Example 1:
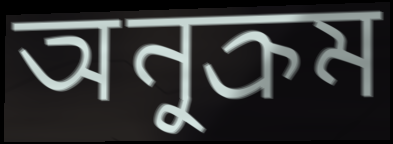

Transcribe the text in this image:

অনুক্রম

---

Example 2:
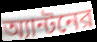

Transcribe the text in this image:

অ্যান্টনের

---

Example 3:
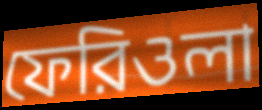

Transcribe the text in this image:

ফেরিওলা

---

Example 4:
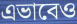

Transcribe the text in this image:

এভাবেও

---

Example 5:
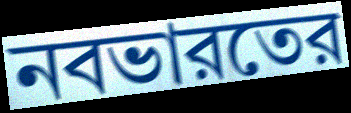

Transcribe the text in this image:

নবভারতের